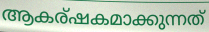
ആകര്ഷകമാക്കുന്നത്